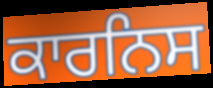
ਕਾਰਨਿਸ